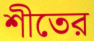
শীতের